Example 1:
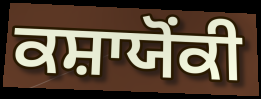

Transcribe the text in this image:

ਕਸ਼ਾਯੋਂਕੀ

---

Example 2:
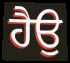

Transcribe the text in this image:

ਹੈਉ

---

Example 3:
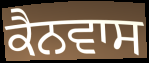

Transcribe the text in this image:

ਕੈਨਵਾਸ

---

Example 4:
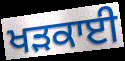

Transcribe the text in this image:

ਖੜਕਾਈ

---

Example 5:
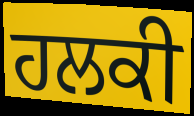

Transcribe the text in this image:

ਹਲਕੀ